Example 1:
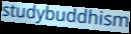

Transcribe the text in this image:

studybuddhism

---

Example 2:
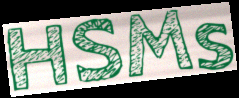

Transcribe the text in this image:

HSMs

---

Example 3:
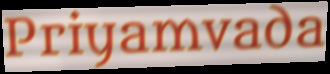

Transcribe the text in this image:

Priyamvada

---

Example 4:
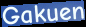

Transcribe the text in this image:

Gakuen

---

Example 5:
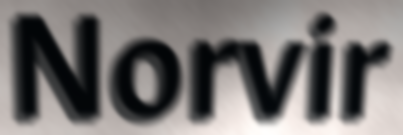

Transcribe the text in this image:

Norvir